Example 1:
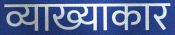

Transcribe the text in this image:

व्याख्याकार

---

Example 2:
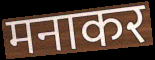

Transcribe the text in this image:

मनाकर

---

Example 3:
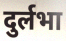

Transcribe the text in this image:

दुर्लभा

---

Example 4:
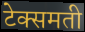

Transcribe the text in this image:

टेक्समती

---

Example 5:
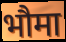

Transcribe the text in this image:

भौमा